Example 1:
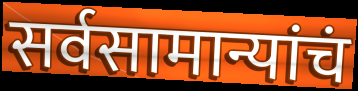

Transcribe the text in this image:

सर्वसामान्यांचं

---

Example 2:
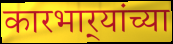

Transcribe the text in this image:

कारभार्यांच्या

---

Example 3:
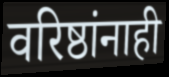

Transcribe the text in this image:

वरिष्ठांनाही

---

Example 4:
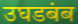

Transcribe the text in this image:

उघडबंब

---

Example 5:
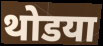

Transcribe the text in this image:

थोडया